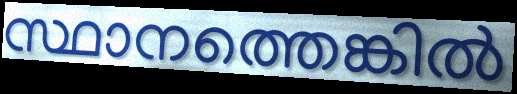
സ്ഥാനത്തെങ്കിൽ